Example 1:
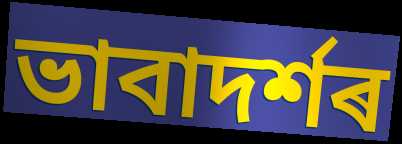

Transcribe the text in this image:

ভাবাদৰ্শৰ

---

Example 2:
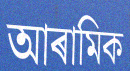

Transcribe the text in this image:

আৰামিক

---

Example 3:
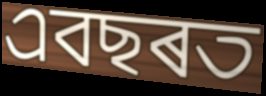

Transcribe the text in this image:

এবছৰত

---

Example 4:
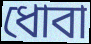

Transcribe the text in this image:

ধোবা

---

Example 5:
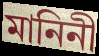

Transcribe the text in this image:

মানিনী